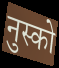
नुस्को